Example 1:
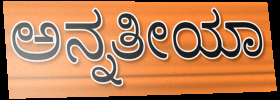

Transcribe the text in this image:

ಅನ್ನತೀಯಾ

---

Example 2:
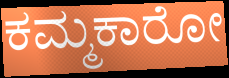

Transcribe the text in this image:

ಕಮ್ಮಕಾರೋ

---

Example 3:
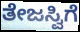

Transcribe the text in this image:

ತೇಜಸ್ವಿಗೆ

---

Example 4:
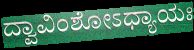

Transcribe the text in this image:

ದ್ವಾವಿಂಶೋಽಧ್ಯಾಯಃ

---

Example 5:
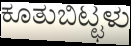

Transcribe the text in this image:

ಕೂತುಬಿಟ್ಟಳು